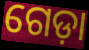
ଗେଡ଼ା